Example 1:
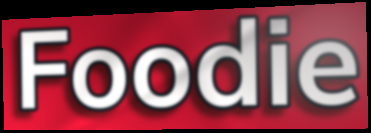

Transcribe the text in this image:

Foodie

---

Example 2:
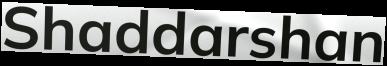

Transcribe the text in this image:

Shaddarshan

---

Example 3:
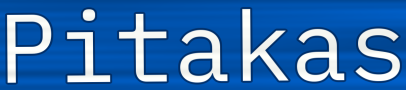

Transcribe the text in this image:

Pitakas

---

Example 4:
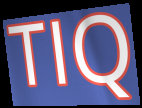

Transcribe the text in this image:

TIQ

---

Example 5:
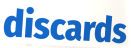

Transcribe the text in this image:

discards